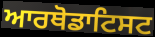
ਆਰਥੋਡਾਟਿਸਟ